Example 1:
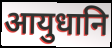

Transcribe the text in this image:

आयुधानि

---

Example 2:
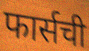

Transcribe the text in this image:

फार्सची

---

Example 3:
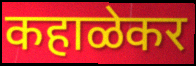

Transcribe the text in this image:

कहाळेकर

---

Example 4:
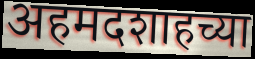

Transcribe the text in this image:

अहमदशाहच्या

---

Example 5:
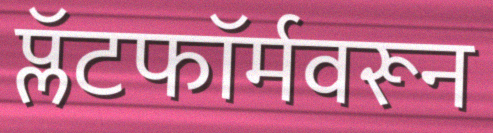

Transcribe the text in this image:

प्लॅटफॉर्मवरून